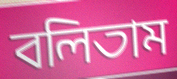
বলিতাম